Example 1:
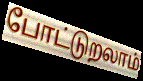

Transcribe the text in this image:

போட்டுறலாம்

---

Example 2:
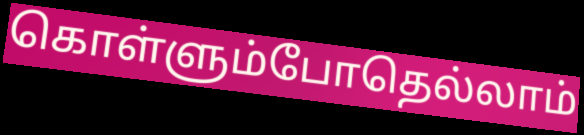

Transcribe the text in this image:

கொள்ளும்போதெல்லாம்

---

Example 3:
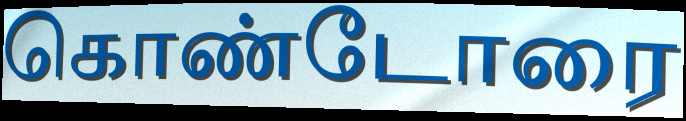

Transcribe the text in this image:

கொண்டோரை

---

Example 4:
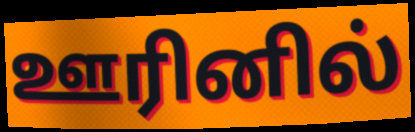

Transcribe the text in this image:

ஊரினில்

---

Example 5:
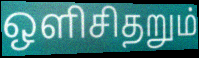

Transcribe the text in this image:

ஒளிசிதறும்